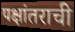
पक्षांतराची